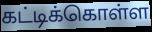
கட்டிக்கொள்ள